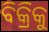
ବିକ୍ରିକୁ